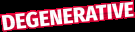
DEGENERATIVE